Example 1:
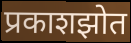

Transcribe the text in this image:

प्रकाशझोत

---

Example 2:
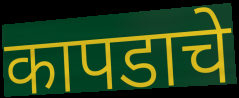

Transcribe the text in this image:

कापडाचे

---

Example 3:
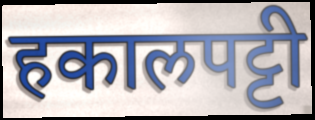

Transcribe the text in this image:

हकालपट्टी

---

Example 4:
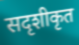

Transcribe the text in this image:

सदृशीकृत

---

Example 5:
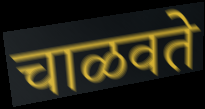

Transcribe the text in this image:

चाळवते